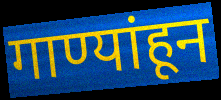
गाण्यांहून